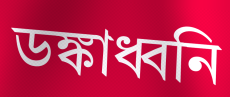
ডঙ্কাধ্বনি